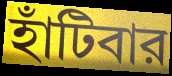
হাঁটিবার